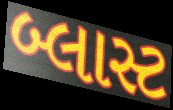
બ્લાસ્ટ